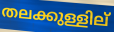
തലക്കുള്ളില്